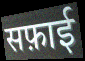
सफ़ाई